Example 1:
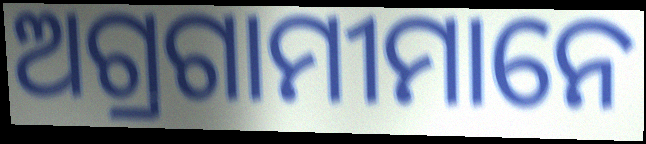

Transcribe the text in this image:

ଅଗ୍ରଗାମୀମାନେ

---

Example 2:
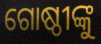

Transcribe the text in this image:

ଗୋଷ୍ଠୀଙ୍କୁ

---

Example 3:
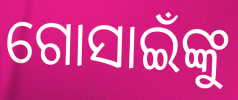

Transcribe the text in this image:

ଗୋସାଇଁଙ୍କୁ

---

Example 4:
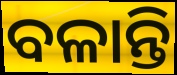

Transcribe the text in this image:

ବଳାନ୍ତି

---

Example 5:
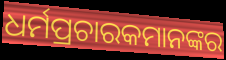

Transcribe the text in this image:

ଧର୍ମପ୍ରଚାରକମାନଙ୍କର